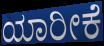
ಯಾರೀಕೆ